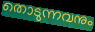
തൊടുന്നവനും